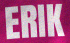
ERIK